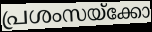
പ്രശംസയ്ക്കോ